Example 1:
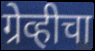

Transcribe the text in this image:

ग्रेव्हीचा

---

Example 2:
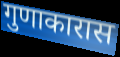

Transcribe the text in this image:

गुणाकारास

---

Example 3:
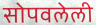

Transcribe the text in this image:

सोपवलेली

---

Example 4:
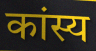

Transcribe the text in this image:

कांस्य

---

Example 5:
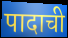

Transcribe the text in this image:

पादाची